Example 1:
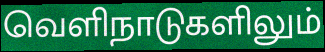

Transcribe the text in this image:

வெளிநாடுகளிலும்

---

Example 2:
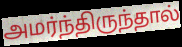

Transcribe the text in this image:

அமர்ந்திருந்தால்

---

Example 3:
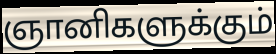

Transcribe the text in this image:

ஞானிகளுக்கும்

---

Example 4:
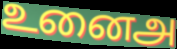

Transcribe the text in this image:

உனைஅ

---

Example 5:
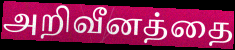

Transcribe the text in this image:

அறிவீனத்தை